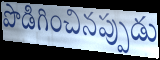
పొడిగించినప్పుడు